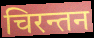
चिरन्तन